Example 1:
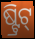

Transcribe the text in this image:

ଷ୍ଟ୍ରିଟ୍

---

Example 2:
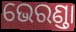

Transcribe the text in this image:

ଭେରଣ୍ଡା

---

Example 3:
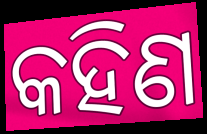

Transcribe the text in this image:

କହିଣ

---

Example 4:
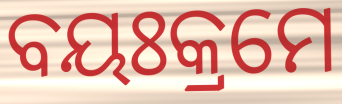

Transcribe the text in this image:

ବୟଃକ୍ରମେ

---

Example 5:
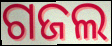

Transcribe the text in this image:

ଗଜଲ